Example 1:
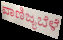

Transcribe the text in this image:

ವಾಣಿಜ್ಯಬೆಳೆ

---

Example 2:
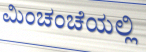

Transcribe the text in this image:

ಮಿಂಚಂಚೆಯಲ್ಲಿ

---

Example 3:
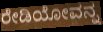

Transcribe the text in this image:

ರೇಡಿಯೋವನ್ನ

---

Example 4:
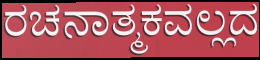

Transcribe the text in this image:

ರಚನಾತ್ಮಕವಲ್ಲದ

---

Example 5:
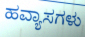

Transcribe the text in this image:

ಹವ್ಯಾಸಗಳು